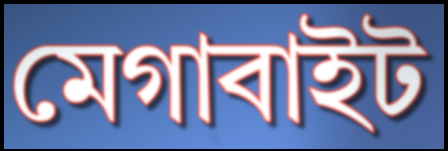
মেগাবাইট